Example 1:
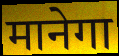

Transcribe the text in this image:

मानेगा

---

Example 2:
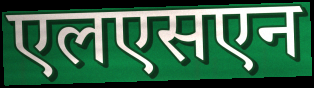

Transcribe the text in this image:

एलएसएन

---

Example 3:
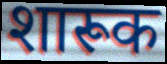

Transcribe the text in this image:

शारूक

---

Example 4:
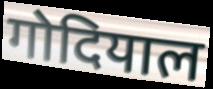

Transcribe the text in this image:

गोदियाल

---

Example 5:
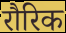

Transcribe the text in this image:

रौरिक